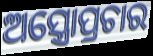
ଅସ୍ତ୍ରୋପ୍ରଚାର